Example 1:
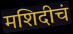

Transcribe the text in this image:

मशिदीचं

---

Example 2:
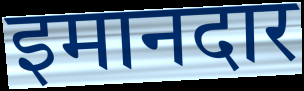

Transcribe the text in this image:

इमानदार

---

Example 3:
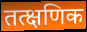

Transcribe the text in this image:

तत्क्षणिक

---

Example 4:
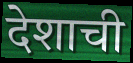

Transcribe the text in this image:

देशाची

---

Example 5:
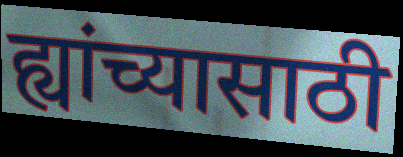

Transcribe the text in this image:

ह्यांच्यासाठी